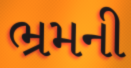
ભ્રમની